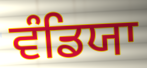
ਵੰਡਿਯਾ